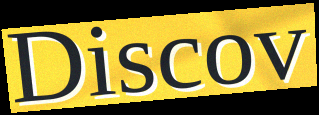
Discov